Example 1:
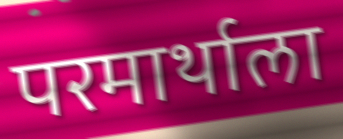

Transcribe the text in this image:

परमार्थाला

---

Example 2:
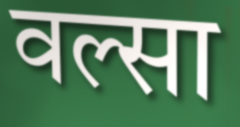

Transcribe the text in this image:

वल्सा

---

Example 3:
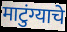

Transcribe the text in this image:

माटुंग्याचे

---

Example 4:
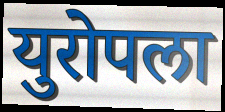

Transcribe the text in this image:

युरोपला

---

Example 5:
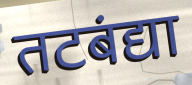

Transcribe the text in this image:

तटबंद्या